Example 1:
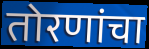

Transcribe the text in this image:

तोरणांचा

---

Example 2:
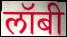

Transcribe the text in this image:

लॉबी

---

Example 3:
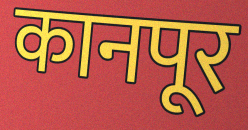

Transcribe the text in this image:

कानपूर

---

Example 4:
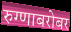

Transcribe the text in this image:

रुग्णाबरोबर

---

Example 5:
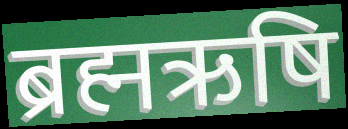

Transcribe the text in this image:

ब्रह्मऋषि